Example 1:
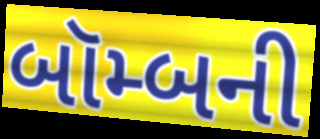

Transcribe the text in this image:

બૉમ્બની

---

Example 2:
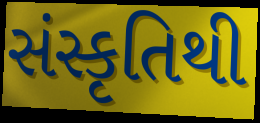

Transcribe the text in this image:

સંસ્કૃતિથી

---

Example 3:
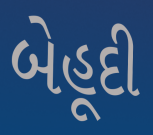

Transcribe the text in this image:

બેહૂદી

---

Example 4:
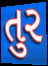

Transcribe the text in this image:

તુર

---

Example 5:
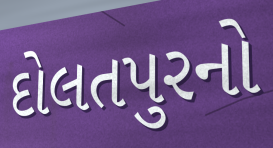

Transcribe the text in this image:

દોલતપુરનો